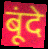
बूंदे